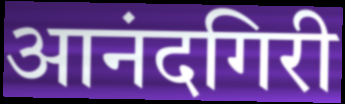
आनंदगिरी